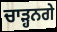
ਚਾੜ੍ਹਨਗੇ